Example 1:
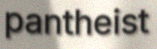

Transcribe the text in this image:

pantheist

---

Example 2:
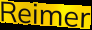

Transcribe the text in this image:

Reimer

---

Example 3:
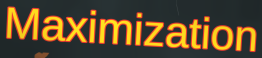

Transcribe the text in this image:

Maximization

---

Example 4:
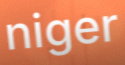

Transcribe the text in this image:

niger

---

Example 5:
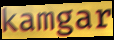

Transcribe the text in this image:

kamgar